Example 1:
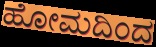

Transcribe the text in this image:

ಹೋಮದಿಂದ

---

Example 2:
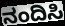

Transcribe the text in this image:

ನಂದಿಸಿ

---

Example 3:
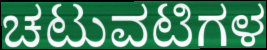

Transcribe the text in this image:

ಚಟುವಟಿಗಳ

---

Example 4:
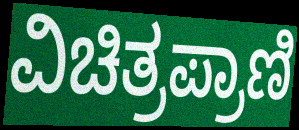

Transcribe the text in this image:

ವಿಚಿತ್ರಪ್ರಾಣಿ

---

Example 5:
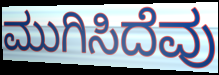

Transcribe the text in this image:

ಮುಗಿಸಿದೆವು